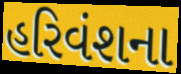
હરિવંશના